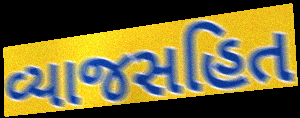
વ્યાજસહિત